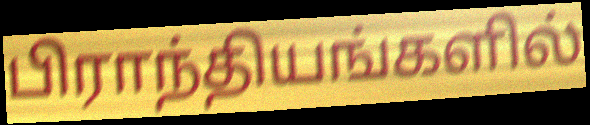
பிராந்தியங்களில்